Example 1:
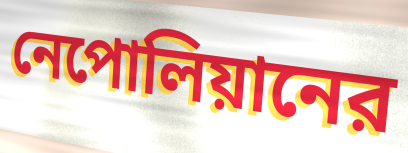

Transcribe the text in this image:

নেপোলিয়ানের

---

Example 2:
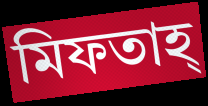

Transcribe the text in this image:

মিফতাহ্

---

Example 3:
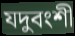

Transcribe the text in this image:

যদুবংশী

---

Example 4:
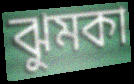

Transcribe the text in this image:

ঝুমকা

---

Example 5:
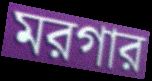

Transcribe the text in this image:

মরগার